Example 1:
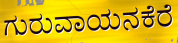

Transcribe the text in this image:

ಗುರುವಾಯನಕೆರೆ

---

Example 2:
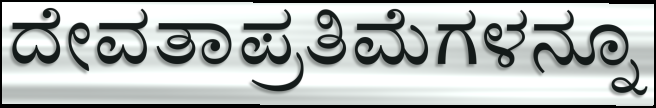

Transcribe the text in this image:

ದೇವತಾಪ್ರತಿಮೆಗಳನ್ನೂ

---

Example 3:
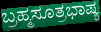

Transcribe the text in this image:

ಬ್ರಹ್ಮಸೂತ್ರಭಾಷ್ಯ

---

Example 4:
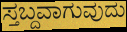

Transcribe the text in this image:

ಸ್ತಬ್ದವಾಗುವುದು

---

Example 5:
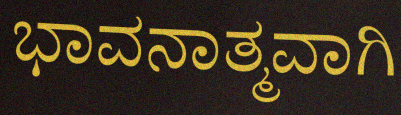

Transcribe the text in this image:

ಭಾವನಾತ್ಮವಾಗಿ